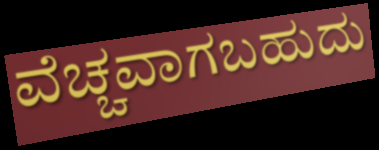
ವೆಚ್ಚವಾಗಬಹುದು